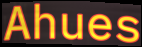
Ahues